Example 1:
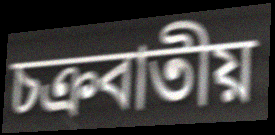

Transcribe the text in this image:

চক্রবাতীয়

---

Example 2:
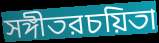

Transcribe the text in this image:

সঙ্গীতরচয়িতা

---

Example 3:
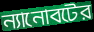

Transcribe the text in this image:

ন্যানোবটের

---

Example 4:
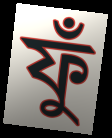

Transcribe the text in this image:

ফুঁ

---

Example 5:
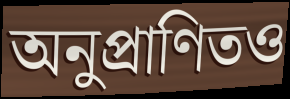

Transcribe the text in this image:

অনুপ্রাণিতও